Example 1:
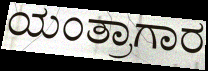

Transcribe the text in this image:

ಯಂತ್ರಾಗಾರ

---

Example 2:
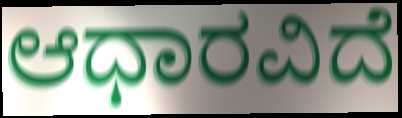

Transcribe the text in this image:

ಆಧಾರವಿದೆ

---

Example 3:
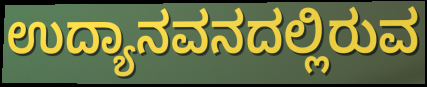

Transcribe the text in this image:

ಉದ್ಯಾನವನದಲ್ಲಿರುವ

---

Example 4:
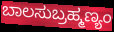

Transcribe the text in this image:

ಬಾಲಸುಬ್ರಹ್ಮಣ್ಯಂ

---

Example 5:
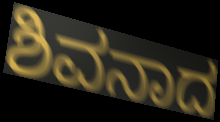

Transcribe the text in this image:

ಶಿವನಾದ